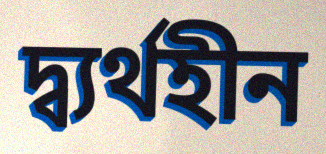
দ্ব্যর্থহীন